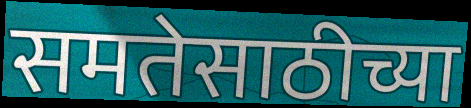
समतेसाठीच्या